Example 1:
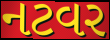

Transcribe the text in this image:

નટવર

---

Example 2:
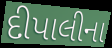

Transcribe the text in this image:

દીપાલીના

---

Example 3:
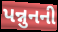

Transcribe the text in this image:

પન્નુનની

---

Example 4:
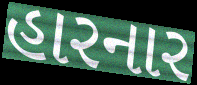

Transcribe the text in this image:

હારનાર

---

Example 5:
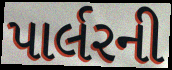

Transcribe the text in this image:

પાર્લરની